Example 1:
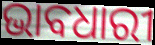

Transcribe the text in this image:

ଭାବଧାରୀ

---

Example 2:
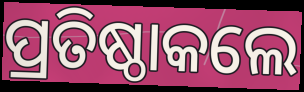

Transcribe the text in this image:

ପ୍ରତିଷ୍ଠାକଲେ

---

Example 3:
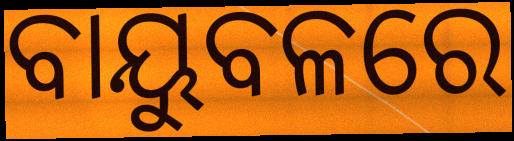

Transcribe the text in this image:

ବାୟୁବଳରେ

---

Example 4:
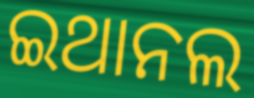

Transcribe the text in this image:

ଇଥାନଲ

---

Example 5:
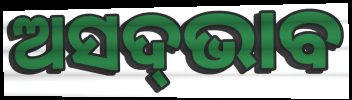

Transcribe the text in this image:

ଅସଦ୍‌ଭାବ